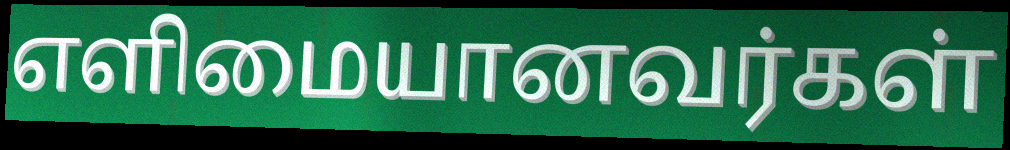
எளிமையானவர்கள்